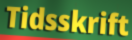
Tidsskrift